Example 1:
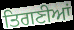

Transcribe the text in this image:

ਤਿਗਣੀਆਂ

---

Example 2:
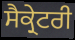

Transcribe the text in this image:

ਸੈਕ੍ਰੇਟਰੀ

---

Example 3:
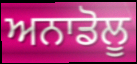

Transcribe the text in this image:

ਅਨਾਡੋਲੂ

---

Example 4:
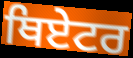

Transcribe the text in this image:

ਥਿਏਟਰ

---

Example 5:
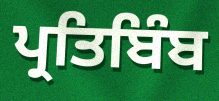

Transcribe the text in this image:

ਪ੍ਰਤਿਬਿੰਬ